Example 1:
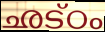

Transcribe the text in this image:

ഛട്ഠം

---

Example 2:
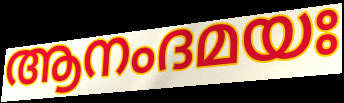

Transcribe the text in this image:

ആനംദമയഃ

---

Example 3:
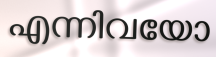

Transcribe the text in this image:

എന്നിവയോ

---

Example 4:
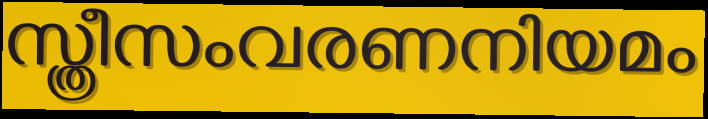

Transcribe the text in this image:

സ്ത്രീസംവരണനിയമം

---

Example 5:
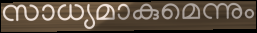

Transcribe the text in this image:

സാധ്യമാകുമെന്നും